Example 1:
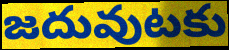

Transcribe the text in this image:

జదువుటకు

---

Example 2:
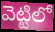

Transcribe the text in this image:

వెట్టిలో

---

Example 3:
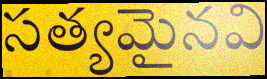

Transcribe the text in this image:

సత్యమైనవి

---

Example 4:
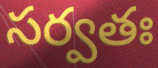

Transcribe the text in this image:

సర్వతః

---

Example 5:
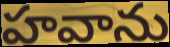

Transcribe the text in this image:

హవాను